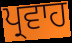
ਪ੍ਰਵਾਹ